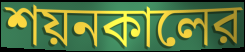
শয়নকালের